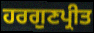
ਹਰਗੁਣਪ੍ਰੀਤ